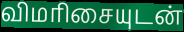
விமரிசையுடன்